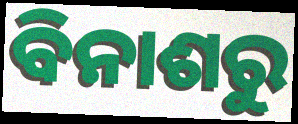
ବିନାଶରୁ